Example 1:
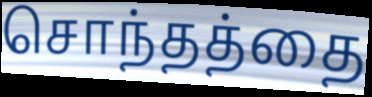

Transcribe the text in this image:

சொந்தத்தை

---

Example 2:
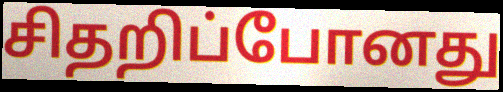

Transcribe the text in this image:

சிதறிப்போனது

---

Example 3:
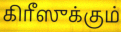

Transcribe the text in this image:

கிரீஸுக்கும்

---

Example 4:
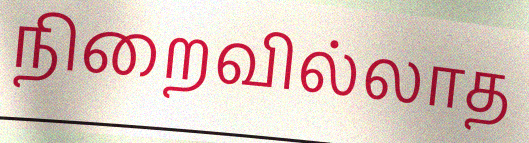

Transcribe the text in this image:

நிறைவில்லாத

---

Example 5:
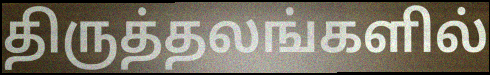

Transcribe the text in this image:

திருத்தலங்களில்